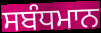
ਸਬੰਧਮਾਨ